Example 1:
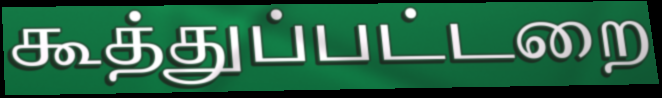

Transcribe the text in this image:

கூத்துப்பட்டறை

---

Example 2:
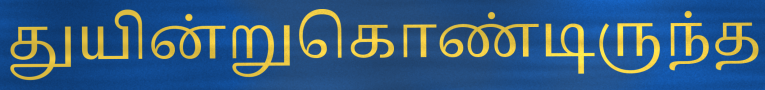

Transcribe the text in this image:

துயின்றுகொண்டிருந்த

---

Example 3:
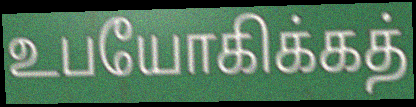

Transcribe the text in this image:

உபயோகிக்கத்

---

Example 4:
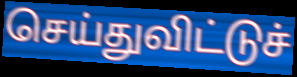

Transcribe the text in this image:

செய்துவிட்டுச்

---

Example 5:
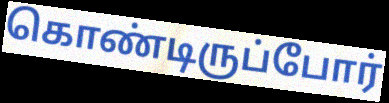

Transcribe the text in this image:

கொண்டிருப்போர்